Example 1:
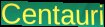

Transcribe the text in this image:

Centauri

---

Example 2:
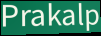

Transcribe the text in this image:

Prakalp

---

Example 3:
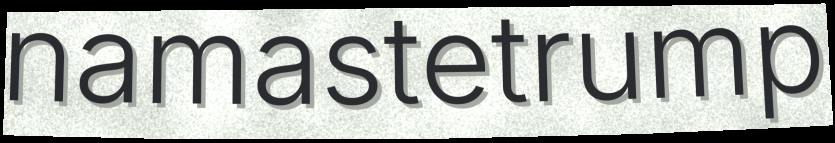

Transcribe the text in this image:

namastetrump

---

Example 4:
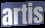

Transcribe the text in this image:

artis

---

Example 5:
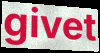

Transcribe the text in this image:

givet